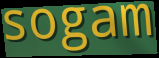
sogam